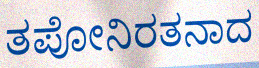
ತಪೋನಿರತನಾದ